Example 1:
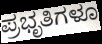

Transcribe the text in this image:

ಪ್ರಭೃತಿಗಳೂ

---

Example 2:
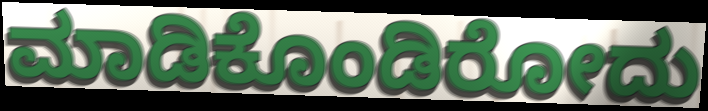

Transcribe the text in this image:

ಮಾಡಿಕೊಂಡಿರೋದು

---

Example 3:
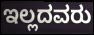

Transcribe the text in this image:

ಇಲ್ಲದವರು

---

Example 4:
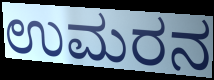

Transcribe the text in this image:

ಉಮರನ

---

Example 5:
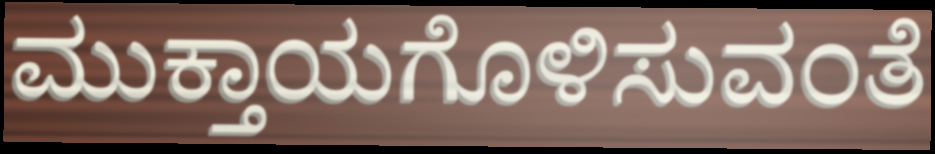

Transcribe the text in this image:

ಮುಕ್ತಾಯಗೊಳಿಸುವಂತೆ